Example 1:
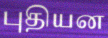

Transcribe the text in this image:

புதியன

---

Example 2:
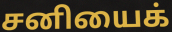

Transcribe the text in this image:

சனியைக்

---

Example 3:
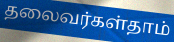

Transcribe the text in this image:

தலைவர்கள்தாம்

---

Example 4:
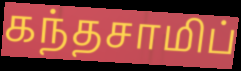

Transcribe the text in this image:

கந்தசாமிப்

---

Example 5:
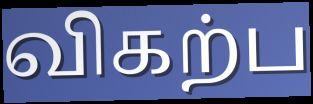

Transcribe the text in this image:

விகற்ப